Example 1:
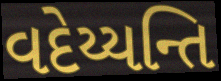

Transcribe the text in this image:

વદેય્યન્તિ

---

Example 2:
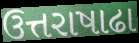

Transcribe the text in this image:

ઉત્તરાષાઢા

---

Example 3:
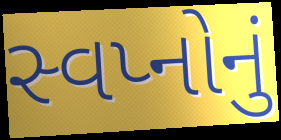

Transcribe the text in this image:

સ્વપ્નોનું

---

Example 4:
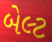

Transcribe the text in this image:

બેલ્ટ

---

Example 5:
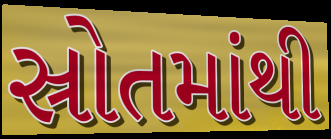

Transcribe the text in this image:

સ્રોતમાંથી